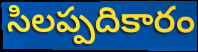
సిలప్పదికారం